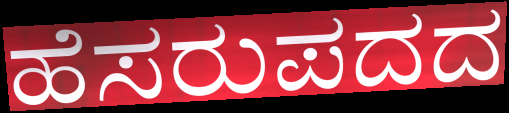
ಹೆಸರುಪದದ